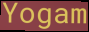
Yogam